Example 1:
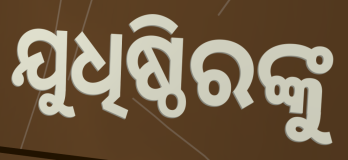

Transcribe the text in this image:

ଯୁଧିଷ୍ଠିରଙ୍କୁ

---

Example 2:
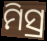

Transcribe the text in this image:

ମିସ୍ର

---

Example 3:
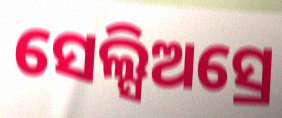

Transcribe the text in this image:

ସେଲ୍ସିଅସ୍ରେ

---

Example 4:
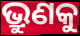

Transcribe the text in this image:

ଭ୍ରୁଣକୁ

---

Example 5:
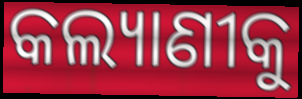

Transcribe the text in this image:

କଲ୍ୟାଣୀକୁ